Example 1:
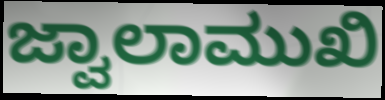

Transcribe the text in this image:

ಜ್ವಾಲಾಮುಖಿ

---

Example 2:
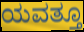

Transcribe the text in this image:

ಯವತ್ತೂ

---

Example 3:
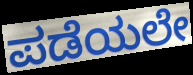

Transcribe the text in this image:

ಪಡೆಯಲೇ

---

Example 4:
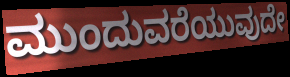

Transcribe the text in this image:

ಮುಂದುವರೆಯುವುದೇ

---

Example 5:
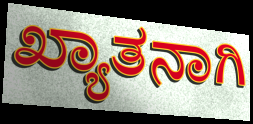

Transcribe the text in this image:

ಖ್ಯಾತನಾಗಿ